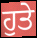
ਹੁਤੇ